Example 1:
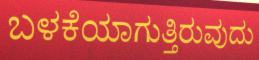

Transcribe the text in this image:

ಬಳಕೆಯಾಗುತ್ತಿರುವುದು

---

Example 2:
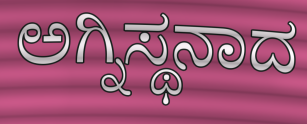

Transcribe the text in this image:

ಅಗ್ನಿಸ್ಥನಾದ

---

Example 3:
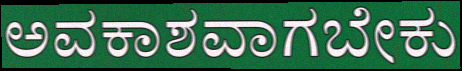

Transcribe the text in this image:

ಅವಕಾಶವಾಗಬೇಕು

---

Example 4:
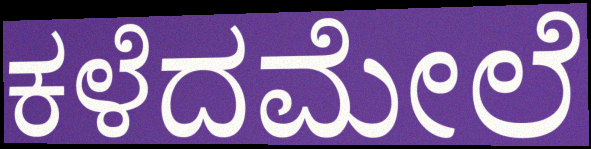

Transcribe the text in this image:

ಕಳೆದಮೇಲೆ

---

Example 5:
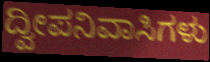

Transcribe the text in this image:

ದ್ವೀಪನಿವಾಸಿಗಳು